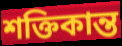
শক্তিকান্ত